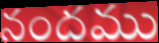
నందము